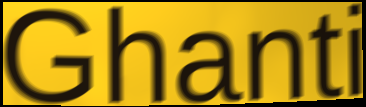
Ghanti